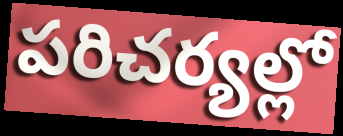
పరిచర్యల్లో